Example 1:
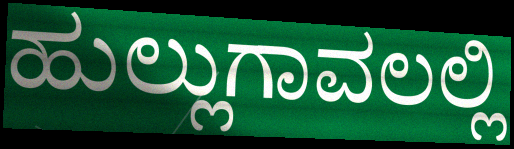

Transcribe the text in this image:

ಹುಲ್ಲುಗಾವಲಲ್ಲಿ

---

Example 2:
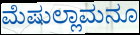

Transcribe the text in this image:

ಮೆಷುಲ್ಲಾಮನೂ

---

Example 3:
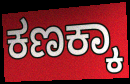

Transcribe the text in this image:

ಕಣಕ್ಕಾ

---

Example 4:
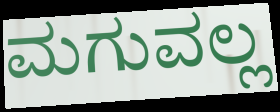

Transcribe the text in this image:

ಮಗುವಲ್ಲ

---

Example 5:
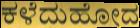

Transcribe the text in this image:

ಕಳೆದುಹೋದ